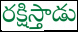
రక్షిస్తాడు